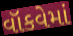
વૉકવેમાં